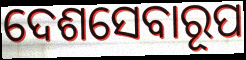
ଦେଶସେବାରୂପ